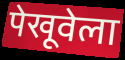
पेखूवेला